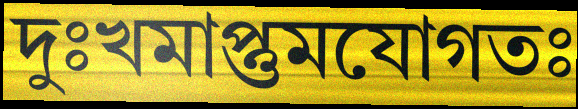
দুঃখমাপ্তুমযোগতঃ